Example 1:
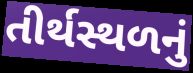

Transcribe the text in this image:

તીર્થસ્થળનું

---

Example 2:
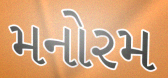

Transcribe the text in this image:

મનોરમ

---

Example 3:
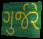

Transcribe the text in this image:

ગુર્જરે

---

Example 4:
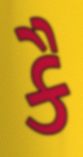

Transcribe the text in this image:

કૈ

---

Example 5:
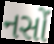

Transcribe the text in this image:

નસોં